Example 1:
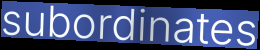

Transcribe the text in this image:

subordinates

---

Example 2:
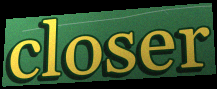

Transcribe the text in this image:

closer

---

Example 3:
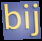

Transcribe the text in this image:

bij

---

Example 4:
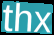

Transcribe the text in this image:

thx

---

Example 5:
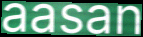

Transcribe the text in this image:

aasan